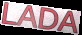
LADA